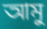
আমু